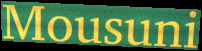
Mousuni